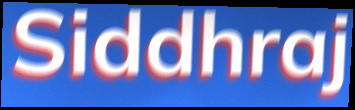
Siddhraj